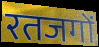
रतजगों